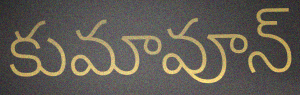
కుమావూన్